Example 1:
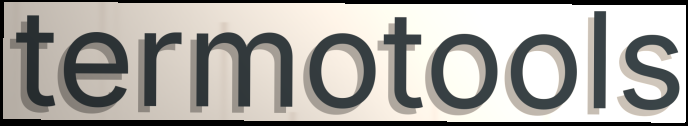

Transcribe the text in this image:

termotools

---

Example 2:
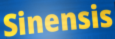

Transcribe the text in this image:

Sinensis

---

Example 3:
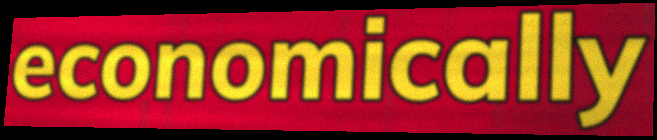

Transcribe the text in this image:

economically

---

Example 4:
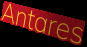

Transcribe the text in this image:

Antares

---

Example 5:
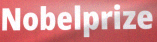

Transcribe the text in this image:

Nobelprize